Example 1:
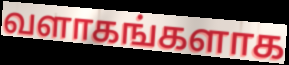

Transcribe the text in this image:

வளாகங்களாக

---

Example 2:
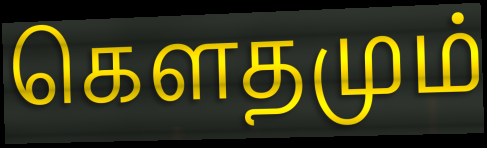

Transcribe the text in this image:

கெளதமும்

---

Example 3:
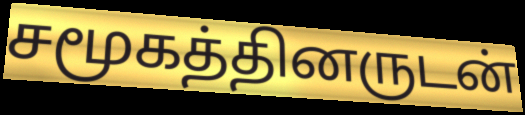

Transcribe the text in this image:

சமூகத்தினருடன்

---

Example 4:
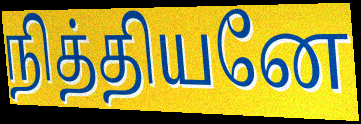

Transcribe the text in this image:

நித்தியனே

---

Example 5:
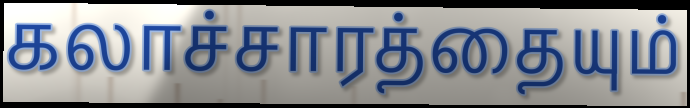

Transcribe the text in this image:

கலாச்சாரத்தையும்